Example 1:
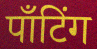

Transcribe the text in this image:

पाँटिंग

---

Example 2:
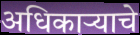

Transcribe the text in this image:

अधिकाऱ्याचे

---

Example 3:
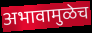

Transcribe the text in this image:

अभावामुळेच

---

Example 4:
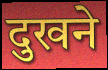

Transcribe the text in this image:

दुखने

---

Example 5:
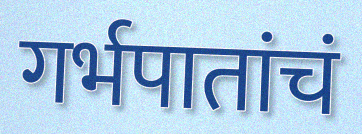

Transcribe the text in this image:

गर्भपातांचं